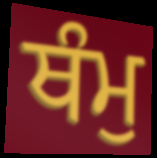
ਥੰਮੁ